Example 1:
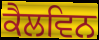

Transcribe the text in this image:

ਕੈਲਵਿਨ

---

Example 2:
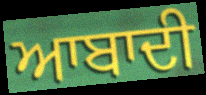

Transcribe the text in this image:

ਆਬਾਦੀ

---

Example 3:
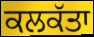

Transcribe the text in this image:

ਕਲਕੱਤਾ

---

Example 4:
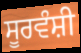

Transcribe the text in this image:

ਸੂਰਵੰਸ਼ੀ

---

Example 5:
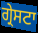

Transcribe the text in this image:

ਗ੍ਰੇਸਟਾ